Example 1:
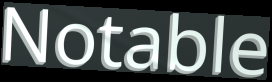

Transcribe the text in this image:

Notable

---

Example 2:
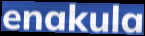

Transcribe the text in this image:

enakula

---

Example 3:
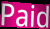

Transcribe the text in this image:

Paid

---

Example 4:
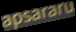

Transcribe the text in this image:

apsararu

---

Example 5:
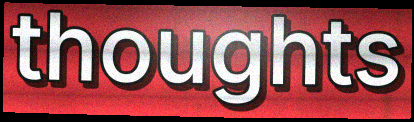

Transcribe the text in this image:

thoughts